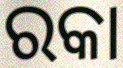
ରକା